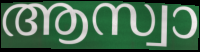
ആസ്വാ